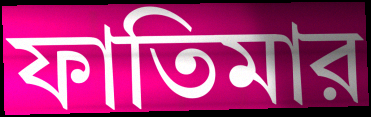
ফাতিমার